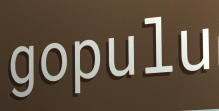
gopulu